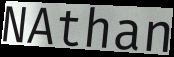
NAthan